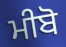
ਮੀਬੋ